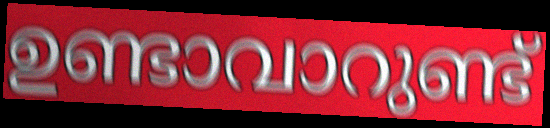
ഉണ്ടാവാറുണ്ട്